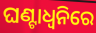
ଘଣ୍ଟାଧ୍ୱନିରେ